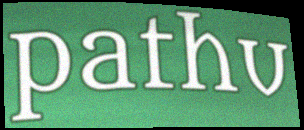
pathu